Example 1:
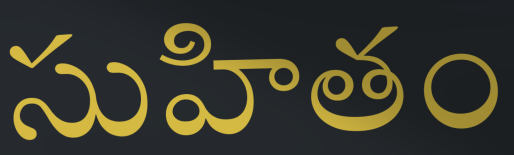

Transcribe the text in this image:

సుహితం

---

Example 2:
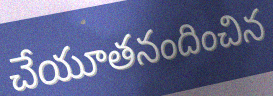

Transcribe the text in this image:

చేయూతనందించిన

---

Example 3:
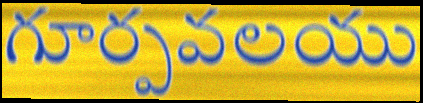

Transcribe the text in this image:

గూర్పవలయు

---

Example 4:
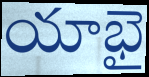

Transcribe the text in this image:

యాభై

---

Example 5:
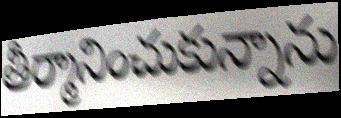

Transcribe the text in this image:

తీర్మానించుకున్నాను